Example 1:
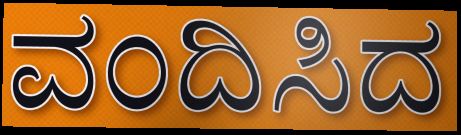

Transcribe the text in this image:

ವಂದಿಸಿದ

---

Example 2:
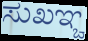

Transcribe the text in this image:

ಸುಖಞ್ಚ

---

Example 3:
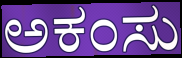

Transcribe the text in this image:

ಅಕಂಸು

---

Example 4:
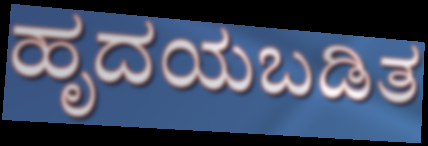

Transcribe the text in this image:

ಹೃದಯಬಡಿತ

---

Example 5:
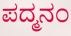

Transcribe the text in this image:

ಪದ್ಮನಂ